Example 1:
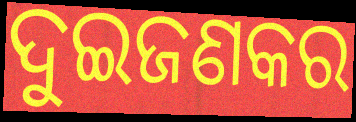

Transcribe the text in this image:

ଦୁଇଜଣକର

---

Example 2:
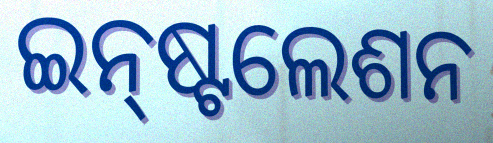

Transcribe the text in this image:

ଇନ୍‌ଷ୍ଟଲେଶନ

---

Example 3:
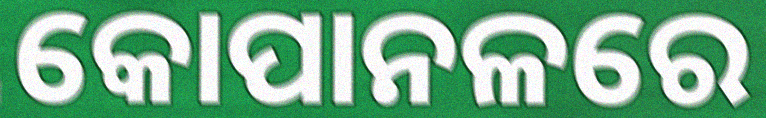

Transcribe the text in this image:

କୋପାନଳରେ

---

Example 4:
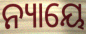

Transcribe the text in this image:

ନ୍ୟାୟେ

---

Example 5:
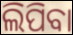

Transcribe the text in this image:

ଲିପିବା